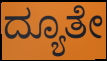
ದ್ಯೂತೇ